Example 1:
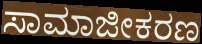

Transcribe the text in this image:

ಸಾಮಾಜೀಕರಣ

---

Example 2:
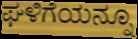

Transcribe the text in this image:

ಘಳಿಗೆಯನ್ನೂ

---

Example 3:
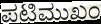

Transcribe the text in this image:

ಪಟಿಮುಖಂ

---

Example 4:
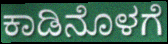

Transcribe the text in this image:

ಕಾಡಿನೊಳಗೆ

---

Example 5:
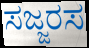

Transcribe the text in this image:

ಸಜ್ಜರಸ